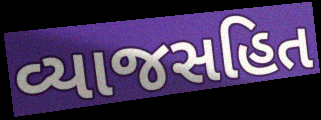
વ્યાજસહિત